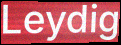
Leydig